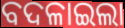
ବଦଳାଇଲା